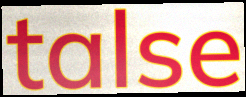
talse